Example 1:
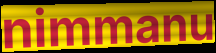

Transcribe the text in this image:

nimmanu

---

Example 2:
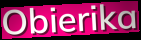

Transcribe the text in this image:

Obierika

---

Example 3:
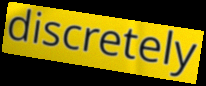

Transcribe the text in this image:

discretely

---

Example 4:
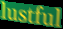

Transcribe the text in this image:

lustful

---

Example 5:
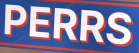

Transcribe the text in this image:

PERRS